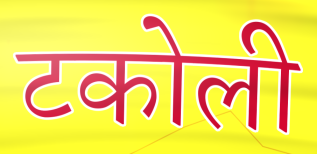
टकोली